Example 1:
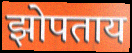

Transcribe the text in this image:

झोपताय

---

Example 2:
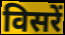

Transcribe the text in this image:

विसरें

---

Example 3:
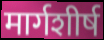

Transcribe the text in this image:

मार्गशीर्ष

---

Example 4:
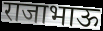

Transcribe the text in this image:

राजाभाऊ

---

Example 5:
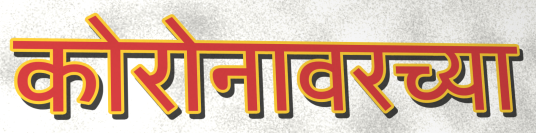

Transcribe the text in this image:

कोरोनावरच्या